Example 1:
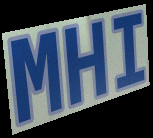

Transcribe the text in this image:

MHI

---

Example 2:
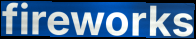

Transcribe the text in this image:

fireworks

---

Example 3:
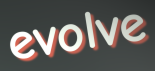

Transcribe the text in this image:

evolve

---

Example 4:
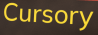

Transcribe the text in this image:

Cursory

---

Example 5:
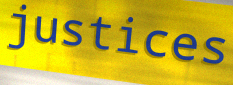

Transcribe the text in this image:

justices